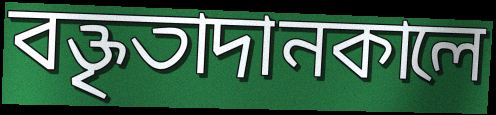
বক্তৃতাদানকালে